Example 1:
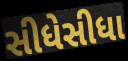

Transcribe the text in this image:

સીધેસીધા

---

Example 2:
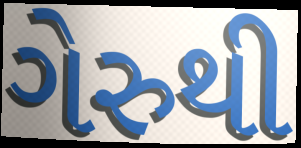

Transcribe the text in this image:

ગેરુથી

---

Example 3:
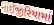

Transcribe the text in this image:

નાઈજીરિયામાં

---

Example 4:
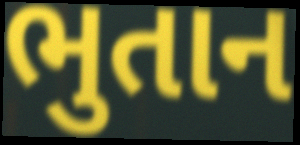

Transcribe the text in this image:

ભુતાન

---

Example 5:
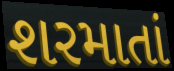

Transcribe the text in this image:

શરમાતાં